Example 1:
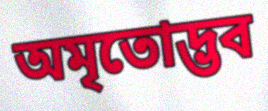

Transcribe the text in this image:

অমৃতোদ্ভব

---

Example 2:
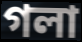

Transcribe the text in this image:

গলা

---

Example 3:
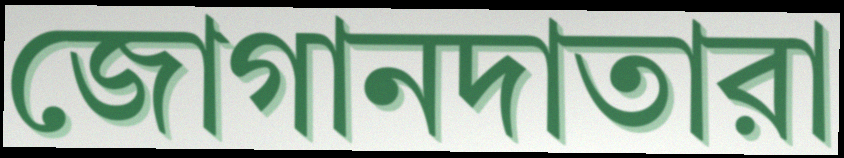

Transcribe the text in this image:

জোগানদাতারা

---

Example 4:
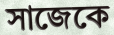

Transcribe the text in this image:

সাজেকে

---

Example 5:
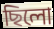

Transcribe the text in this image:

ছিলো